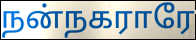
நன்நகராரே